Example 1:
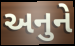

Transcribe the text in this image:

અનુને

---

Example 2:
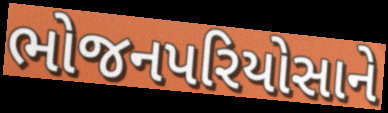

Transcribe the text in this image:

ભોજનપરિયોસાને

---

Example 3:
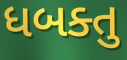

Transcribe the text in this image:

ધબક્તુ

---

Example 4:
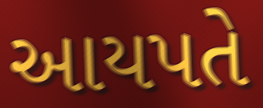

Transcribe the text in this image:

આયપતે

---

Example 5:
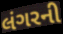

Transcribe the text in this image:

લંગરની